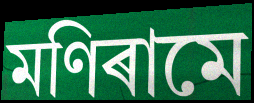
মণিৰামে